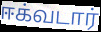
ஈக்வடார்